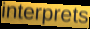
interprets